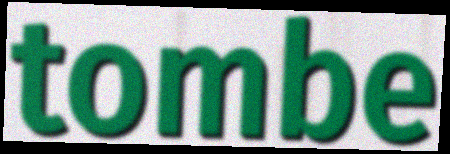
tombe